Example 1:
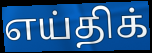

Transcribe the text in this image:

எய்திக்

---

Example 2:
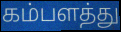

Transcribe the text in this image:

கம்பளத்து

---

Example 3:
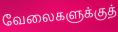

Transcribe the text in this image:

வேலைகளுக்குத்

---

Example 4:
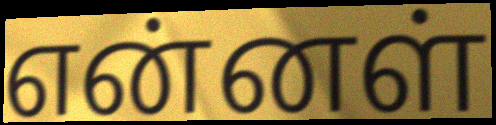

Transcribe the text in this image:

என்னள்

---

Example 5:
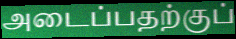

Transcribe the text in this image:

அடைப்பதற்குப்